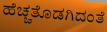
ಹೆಚ್ಚತೊಡಗಿದಂತೆ